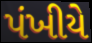
પંખીયે